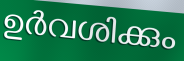
ഉർവശിക്കും